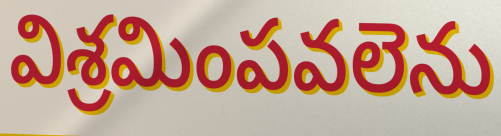
విశ్రమింపవలెను